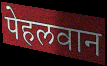
पेहलवान